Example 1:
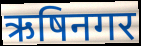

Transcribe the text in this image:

ऋषिनगर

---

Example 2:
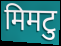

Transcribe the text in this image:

मिमटु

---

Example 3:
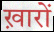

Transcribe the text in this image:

ख़ारों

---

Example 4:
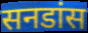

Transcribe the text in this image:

सनडांस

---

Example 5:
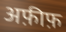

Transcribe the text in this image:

अफ़ीफ़